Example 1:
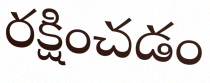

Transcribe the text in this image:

రక్షించడం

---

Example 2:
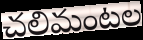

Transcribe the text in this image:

చలిమంటల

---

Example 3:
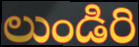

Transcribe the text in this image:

లుండిరి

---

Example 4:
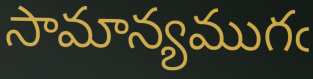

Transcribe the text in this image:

సామాన్యముగఁ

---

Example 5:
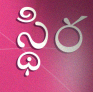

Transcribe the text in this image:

స్థిర